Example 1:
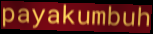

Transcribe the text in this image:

payakumbuh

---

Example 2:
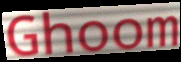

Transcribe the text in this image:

Ghoom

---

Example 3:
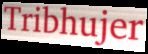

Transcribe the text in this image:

Tribhujer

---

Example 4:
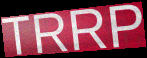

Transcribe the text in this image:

TRRP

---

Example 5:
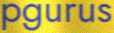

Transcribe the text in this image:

pgurus